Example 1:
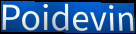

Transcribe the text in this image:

Poidevin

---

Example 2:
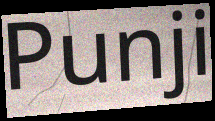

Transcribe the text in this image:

Punji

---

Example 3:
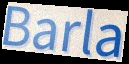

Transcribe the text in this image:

Barla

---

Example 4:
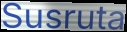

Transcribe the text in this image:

Susruta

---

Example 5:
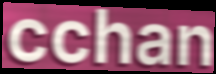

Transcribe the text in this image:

cchan